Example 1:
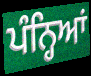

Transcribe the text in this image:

ਪੰਨ੍ਹਿਆਂ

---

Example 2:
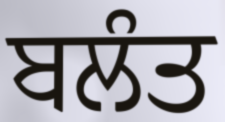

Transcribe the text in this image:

ਬਲੰਤ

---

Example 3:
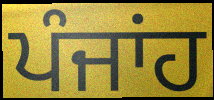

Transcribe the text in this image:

ਪੰਜਾਂਹ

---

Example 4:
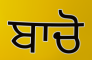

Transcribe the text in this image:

ਬਾਚੋ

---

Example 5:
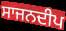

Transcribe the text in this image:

ਸਾਜਨਦੀਪ